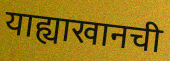
याह्याखानची